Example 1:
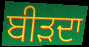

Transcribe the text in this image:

ਬੀੜਦਾ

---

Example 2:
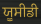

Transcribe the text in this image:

ਯੂਸੀਡੀ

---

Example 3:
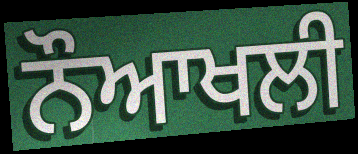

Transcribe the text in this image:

ਨੌਆਖਲੀ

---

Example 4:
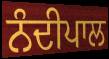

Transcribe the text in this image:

ਨੰਦੀਪਾਲ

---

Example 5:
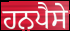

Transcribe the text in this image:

ਹਨਪੈਸੇ